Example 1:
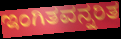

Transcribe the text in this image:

ಇಂಗಿತವನ್ನರಿತ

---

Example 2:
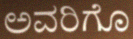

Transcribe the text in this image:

ಅವರಿಗೊ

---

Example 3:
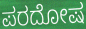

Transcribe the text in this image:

ಪರದೋಷ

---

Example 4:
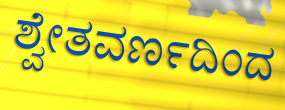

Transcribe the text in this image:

ಶ್ವೇತವರ್ಣದಿಂದ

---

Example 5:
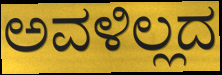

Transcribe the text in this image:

ಅವಳಿಲ್ಲದ